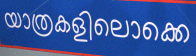
യാത്രകളിലൊക്കെ